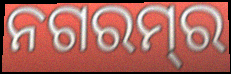
ନଗରମ୍‌ର